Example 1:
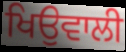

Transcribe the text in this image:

ਖਿਉਵਾਲੀ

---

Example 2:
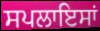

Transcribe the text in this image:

ਸਪਲਾਇਸਾਂ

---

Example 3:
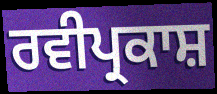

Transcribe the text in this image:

ਰਵੀਪ੍ਰਕਾਸ਼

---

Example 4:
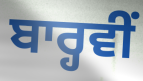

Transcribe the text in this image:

ਬਾਰ੍ਹਵੀਂ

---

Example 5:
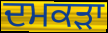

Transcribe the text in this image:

ਦਮਕੜਾ